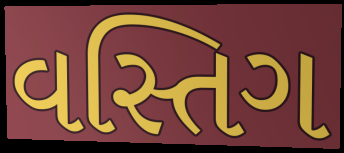
વસ્તિગ